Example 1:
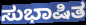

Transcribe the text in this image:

ಸುಭಾಷಿತ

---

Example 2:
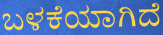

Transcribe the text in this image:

ಬಳಕೆಯಾಗಿದೆ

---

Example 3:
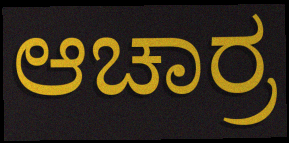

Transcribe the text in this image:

ಆಚಾರ್ರ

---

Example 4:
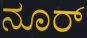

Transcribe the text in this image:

ನೂರ್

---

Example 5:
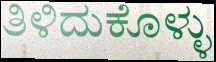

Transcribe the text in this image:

ತಿಳಿದುಕೊಳ್ಳು